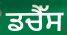
ਡਚੈੱਸ